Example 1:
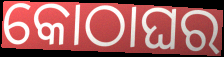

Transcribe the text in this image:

କୋଠାଘର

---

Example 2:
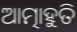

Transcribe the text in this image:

ଆତ୍ମାହୁତି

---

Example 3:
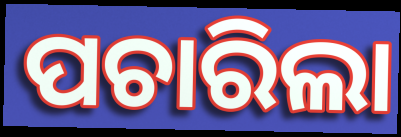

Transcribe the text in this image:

ପଚାରିଲା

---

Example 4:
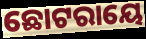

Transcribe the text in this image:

ଛୋଟରାୟେ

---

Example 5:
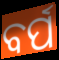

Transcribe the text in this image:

ବର୍ପ